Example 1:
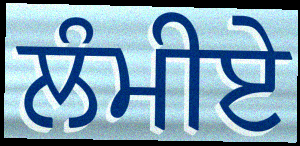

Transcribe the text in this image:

ਲੰਮੀਏ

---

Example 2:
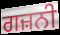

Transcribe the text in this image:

ਗਜ਼ਨੀ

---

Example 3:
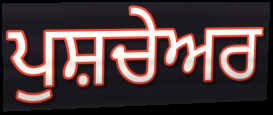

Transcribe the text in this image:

ਪੁਸ਼ਚੇਅਰ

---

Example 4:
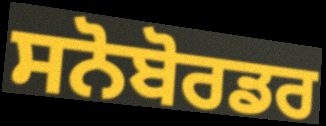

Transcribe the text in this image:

ਸਨੋਬੋਰਡਰ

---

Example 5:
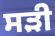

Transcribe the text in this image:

ਸੜੀ